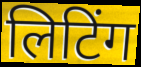
लिटिंग